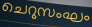
ചെറുസംഘം